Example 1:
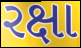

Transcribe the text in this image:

રક્ષા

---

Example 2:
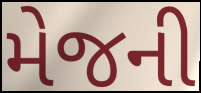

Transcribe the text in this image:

મેજની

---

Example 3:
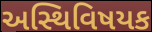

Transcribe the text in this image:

અસ્થિવિષયક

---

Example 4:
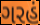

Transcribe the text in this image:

ગરહં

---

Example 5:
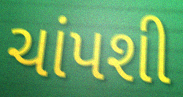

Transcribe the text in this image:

ચાંપશી